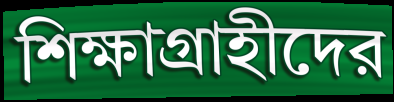
শিক্ষাগ্রাহীদের